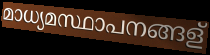
മാധ്യമസ്ഥാപനങ്ങള്